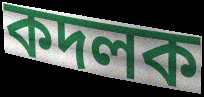
কদলক